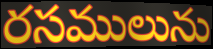
రసములును